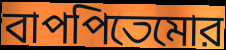
বাপপিতেমোর